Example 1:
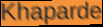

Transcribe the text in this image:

Khaparde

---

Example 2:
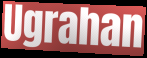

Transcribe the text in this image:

Ugrahan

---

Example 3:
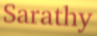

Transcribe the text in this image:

Sarathy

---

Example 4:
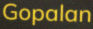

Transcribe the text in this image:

Gopalan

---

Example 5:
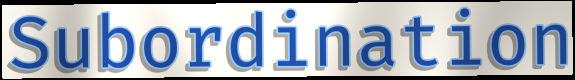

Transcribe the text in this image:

Subordination